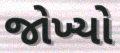
જોખ્યો